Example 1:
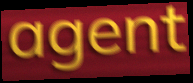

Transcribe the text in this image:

agent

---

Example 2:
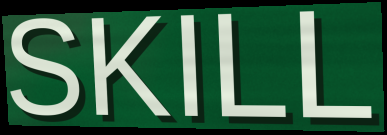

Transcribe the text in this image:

SKILL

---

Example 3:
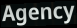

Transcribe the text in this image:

Agency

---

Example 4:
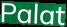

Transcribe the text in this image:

Palat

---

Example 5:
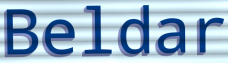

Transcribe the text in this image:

Beldar